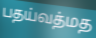
பதய்வத்மத